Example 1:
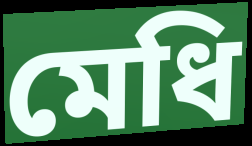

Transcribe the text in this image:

মেধি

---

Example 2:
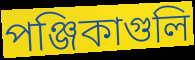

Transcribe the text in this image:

পঞ্জিকাগুলি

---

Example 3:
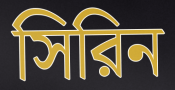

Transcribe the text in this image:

সিরিন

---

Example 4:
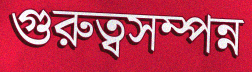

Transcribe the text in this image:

গুরুত্বসম্পন্ন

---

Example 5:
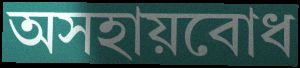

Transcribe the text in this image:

অসহায়বোধ